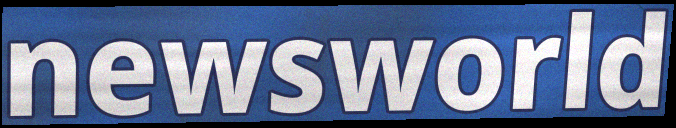
newsworld